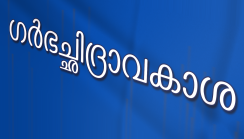
ഗർഭച്ഛിദ്രാവകാശ